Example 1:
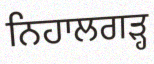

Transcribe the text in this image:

ਨਿਹਾਲਗੜ੍ਹ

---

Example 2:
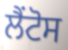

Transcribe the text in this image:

ਲੈਂਟੋਸ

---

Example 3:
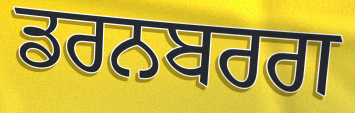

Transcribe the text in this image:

ਡਰਨਬਰਗ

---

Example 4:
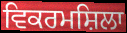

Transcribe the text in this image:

ਵਿਕਰਮਸ਼ਿਲਾ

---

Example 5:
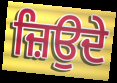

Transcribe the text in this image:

ਜ਼ਿਉਦੇ